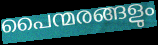
പൈന്മരങ്ങളും